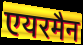
एयरमैन